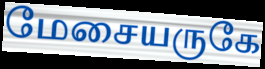
மேசையருகே